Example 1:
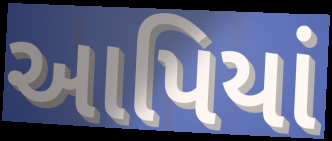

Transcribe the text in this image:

આપિયાં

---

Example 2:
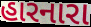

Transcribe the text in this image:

હારનારા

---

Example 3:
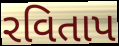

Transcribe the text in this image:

રવિતાપ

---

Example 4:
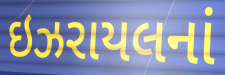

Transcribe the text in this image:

ઇઝરાયલનાં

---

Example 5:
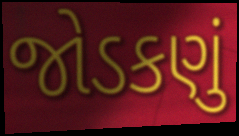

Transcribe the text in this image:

જોડકણું